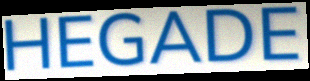
HEGADE